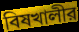
বিষখালীর